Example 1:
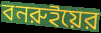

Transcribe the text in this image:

বনরুইয়ের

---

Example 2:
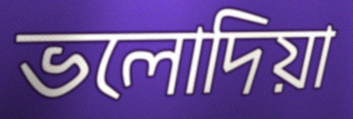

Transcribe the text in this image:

ভলোদিয়া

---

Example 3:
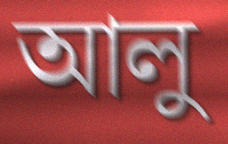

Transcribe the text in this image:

আলু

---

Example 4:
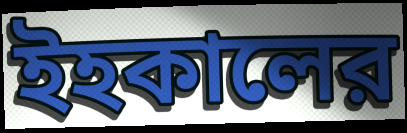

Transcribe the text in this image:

ইহকালের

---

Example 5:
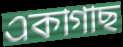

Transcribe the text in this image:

একাগাছ